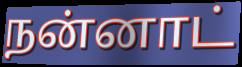
நன்னாட்